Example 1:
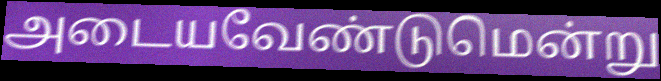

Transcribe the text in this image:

அடையவேண்டுமென்று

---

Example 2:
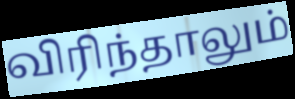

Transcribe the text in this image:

விரிந்தாலும்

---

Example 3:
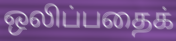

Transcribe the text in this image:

ஒலிப்பதைக்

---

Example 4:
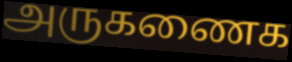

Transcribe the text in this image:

அருகணைக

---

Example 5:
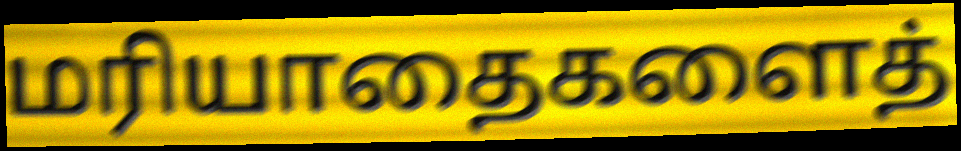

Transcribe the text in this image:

மரியாதைகளைத்